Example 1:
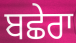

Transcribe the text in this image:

ਬਛੇਰਾ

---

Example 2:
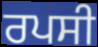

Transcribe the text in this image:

ਰਪਸੀ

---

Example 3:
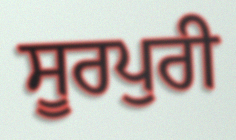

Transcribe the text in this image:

ਸੂਰਪੁਰੀ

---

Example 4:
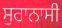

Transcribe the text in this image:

ਸੁਰਾਨਾਸੀ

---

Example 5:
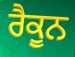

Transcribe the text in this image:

ਰੈਕੂਨ